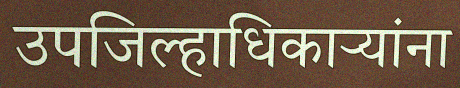
उपजिल्हाधिकाऱ्यांना